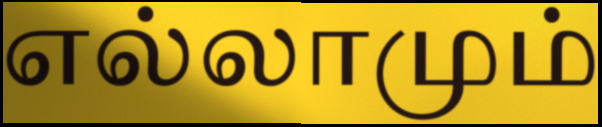
எல்லாமும்